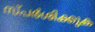
സ്പർശിക്കുക